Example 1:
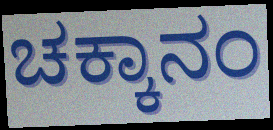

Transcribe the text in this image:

ಚಕ್ಕಾನಂ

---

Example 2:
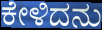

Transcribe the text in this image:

ಕೇಳಿದನು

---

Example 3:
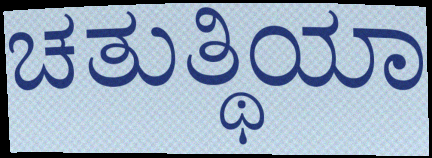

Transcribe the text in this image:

ಚತುತ್ಥಿಯಾ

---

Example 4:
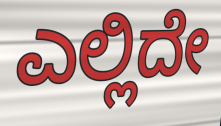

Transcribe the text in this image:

ಎಲ್ಲಿದೇ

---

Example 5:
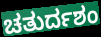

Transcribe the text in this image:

ಚತುರ್ದಶಂ